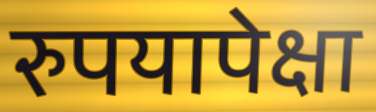
रुपयापेक्षा